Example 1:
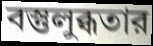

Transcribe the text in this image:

বস্তুলুব্ধতার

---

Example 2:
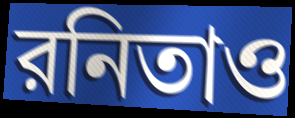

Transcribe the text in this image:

রনিতাও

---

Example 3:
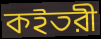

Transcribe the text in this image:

কইতরী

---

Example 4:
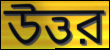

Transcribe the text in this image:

উত্তর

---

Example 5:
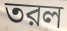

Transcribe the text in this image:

তরল